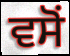
ਵਸੋਂ